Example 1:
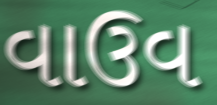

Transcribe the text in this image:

વાઉવ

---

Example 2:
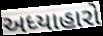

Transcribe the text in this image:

અધ્યાહારો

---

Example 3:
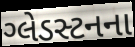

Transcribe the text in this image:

ગ્લેડસ્ટનના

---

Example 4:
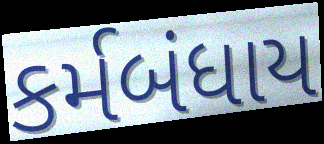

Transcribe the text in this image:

કર્મબંધાય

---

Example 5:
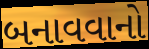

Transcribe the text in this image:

બનાવવાનો